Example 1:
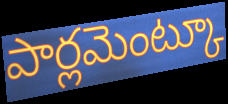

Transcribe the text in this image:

పార్లమెంట్కూ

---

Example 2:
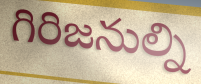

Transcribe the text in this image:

గిరిజనుల్ని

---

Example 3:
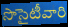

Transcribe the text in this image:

సొసైటీవారి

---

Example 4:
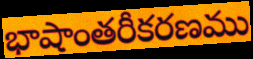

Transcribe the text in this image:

భాషాంతరీకరణము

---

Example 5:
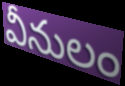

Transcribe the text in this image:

వీనులం